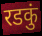
रडकुं